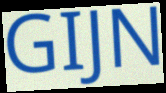
GIJN